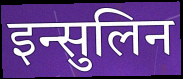
इन्सुलिन